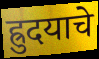
ह्रुदयाचे